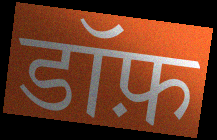
डॉफ़